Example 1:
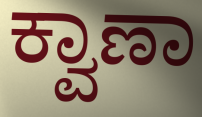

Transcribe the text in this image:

ಕ್ವಾಣಾ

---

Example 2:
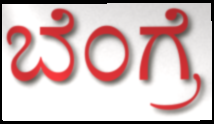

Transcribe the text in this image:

ಬೆಂಗ್ರೆ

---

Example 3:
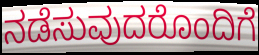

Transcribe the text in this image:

ನಡೆಸುವುದರೊಂದಿಗೆ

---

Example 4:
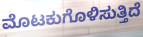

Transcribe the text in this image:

ಮೊಟಕುಗೊಳಿಸುತ್ತಿದೆ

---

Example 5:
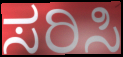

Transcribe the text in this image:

ಸರಿಸಿ